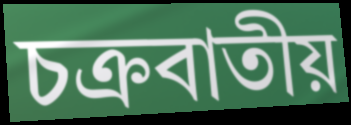
চক্রবাতীয়